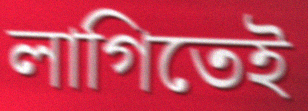
লাগিতেই